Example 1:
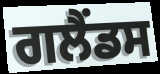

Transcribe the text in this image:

ਗਲੈਂਡਸ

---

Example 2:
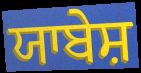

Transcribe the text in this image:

ਯਾਬੇਸ਼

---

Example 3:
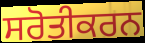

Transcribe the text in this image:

ਸਰੋਤੀਕਰਨ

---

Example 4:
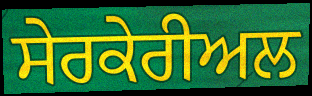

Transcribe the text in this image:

ਸੇਰਕੇਰੀਅਲ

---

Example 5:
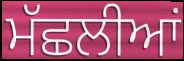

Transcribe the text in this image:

ਮੱਛਲੀਆਂ